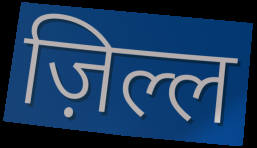
ज़िल्ल